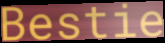
Bestie